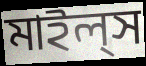
মাইল্‌স